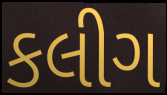
કલીગ